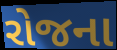
રોજના